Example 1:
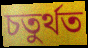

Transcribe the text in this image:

চতুর্থত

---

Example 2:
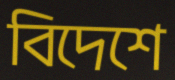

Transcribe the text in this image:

বিদেশে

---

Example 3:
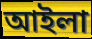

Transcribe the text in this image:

আইলা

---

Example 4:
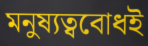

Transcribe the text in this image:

মনুষ্যত্ববোধই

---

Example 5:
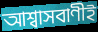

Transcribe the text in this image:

আশ্বাসবাণীই